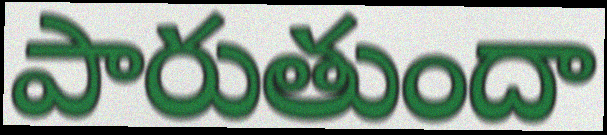
పారుతుందా